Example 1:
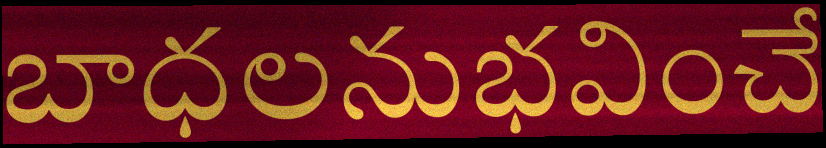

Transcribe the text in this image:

బాధలనుభవించే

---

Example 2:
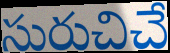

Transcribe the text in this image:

సురుచిచే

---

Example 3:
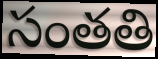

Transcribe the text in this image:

సంతతి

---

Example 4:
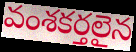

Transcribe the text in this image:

వంశకర్తలైన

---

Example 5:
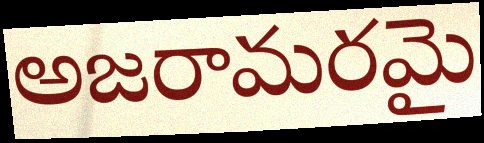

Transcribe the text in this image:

అజరామరమై